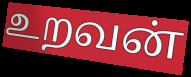
உறவன்